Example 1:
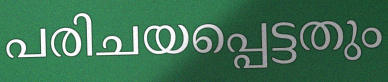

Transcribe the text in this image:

പരിചയപ്പെട്ടതും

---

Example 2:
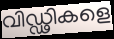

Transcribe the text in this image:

വിഡ്ഢികളെ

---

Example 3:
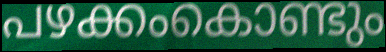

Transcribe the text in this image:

പഴക്കംകൊണ്ടും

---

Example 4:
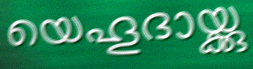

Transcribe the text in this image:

യെഹൂദായ്ക്കു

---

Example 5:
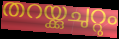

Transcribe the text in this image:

തറയ്ക്കുചുറ്റും